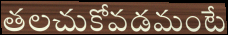
తలచుకోవడమంటే